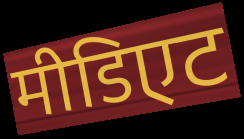
मीडिएट